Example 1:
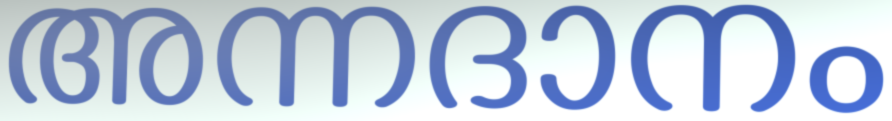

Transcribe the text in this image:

അന്നദാനം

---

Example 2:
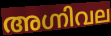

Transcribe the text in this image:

അഗ്നിവല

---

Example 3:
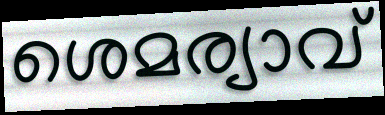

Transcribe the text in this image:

ശെമര്യാവ്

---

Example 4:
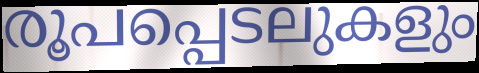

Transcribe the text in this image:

രൂപപ്പെടലുകളും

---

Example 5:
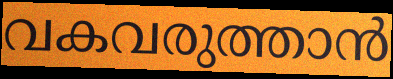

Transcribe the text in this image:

വകവരുത്താൻ